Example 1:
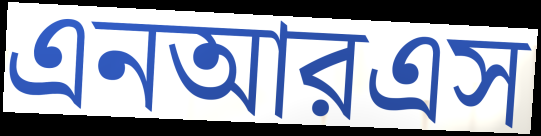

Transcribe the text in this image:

এনআরএস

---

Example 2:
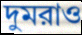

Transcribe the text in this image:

দুমরাও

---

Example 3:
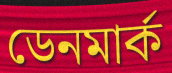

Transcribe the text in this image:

ডেনমার্ক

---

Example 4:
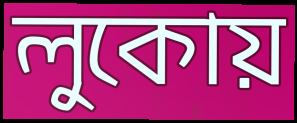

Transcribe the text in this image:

লুকোয়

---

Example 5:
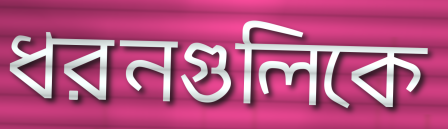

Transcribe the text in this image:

ধরনগুলিকে